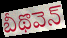
బీథొవెన్